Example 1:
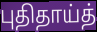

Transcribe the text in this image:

புதிதாய்த்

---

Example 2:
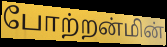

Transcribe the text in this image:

போற்றன்மின்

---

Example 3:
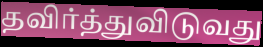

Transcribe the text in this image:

தவிர்த்துவிடுவது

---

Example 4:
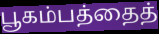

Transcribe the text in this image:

பூகம்பத்தைத்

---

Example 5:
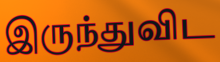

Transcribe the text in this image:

இருந்துவிட